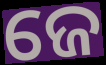
ଜେ